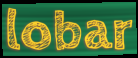
lobar